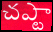
చఎ్టా